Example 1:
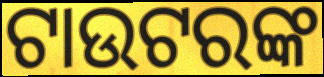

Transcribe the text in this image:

ଟାଉଟରଙ୍କ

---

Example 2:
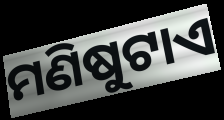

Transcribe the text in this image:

ମଣିଷୁଟାଏ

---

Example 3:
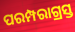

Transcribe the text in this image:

ପରମ୍ପରାଗ୍ରସ୍ତ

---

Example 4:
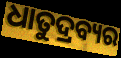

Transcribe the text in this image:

ଧାତୁଦ୍ରବ୍ୟର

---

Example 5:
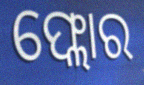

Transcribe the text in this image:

ଫ୍ଲୋର